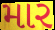
માર